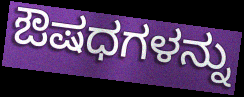
ಔಷಧಗಳನ್ನು